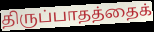
திருப்பாதத்தைக்